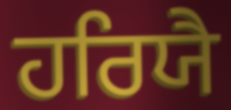
ਹਰਿਯੈ